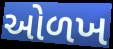
ઓળખ